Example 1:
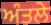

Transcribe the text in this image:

ਅੰਤਲੇ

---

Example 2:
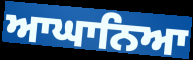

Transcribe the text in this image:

ਆਘਾਨਿਆ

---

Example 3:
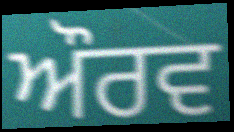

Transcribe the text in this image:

ਔਰਵ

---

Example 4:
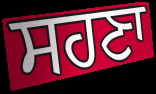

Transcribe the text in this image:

ਸਹਣਾ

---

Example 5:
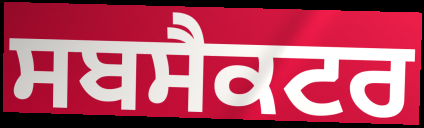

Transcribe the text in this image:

ਸਬਸੈਕਟਰ